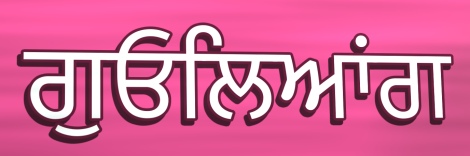
ਗੁਓਲਿਆਂਗ